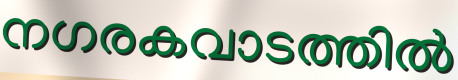
നഗരകവാടത്തിൽ